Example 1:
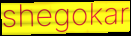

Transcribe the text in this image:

shegokar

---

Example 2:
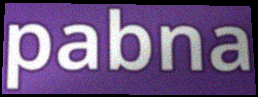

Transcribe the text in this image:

pabna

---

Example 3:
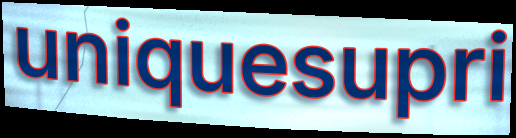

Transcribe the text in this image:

uniquesupri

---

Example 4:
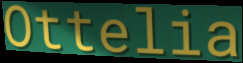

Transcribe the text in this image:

Ottelia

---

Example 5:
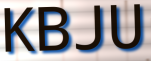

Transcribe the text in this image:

KBJU